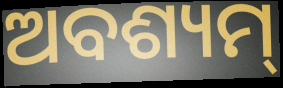
ଅବଶ୍ୟମ୍